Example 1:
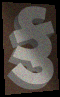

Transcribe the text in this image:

કુ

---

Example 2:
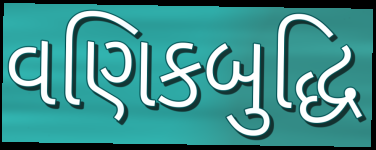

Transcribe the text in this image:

વણિકબુદ્ધિ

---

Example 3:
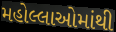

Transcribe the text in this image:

મહોલ્લાઓમાંથી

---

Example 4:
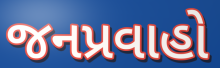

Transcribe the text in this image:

જનપ્રવાહો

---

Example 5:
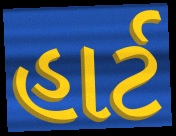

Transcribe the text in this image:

હાર્ટ